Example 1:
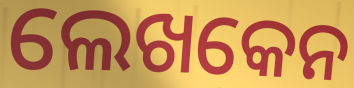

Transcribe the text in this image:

ଲେଖକେନ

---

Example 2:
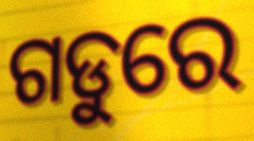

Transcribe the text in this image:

ଗଡୁରେ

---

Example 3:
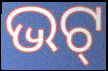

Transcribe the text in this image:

ଭଟ୍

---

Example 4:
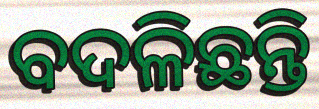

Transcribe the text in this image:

ବଦଳିଛନ୍ତି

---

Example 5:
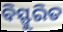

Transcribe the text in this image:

ବିସ୍ଫୁରିତ